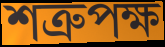
শত্রুপক্ষ